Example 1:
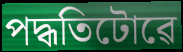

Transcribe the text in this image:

পদ্ধতিটোৱে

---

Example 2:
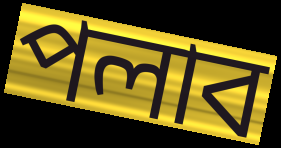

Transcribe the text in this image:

পলাব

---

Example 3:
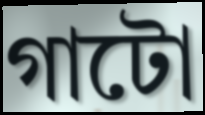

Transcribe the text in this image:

গাটো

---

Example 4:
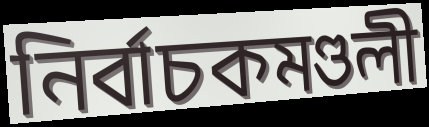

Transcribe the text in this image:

নিৰ্বাচকমণ্ডলী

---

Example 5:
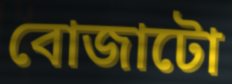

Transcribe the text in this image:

বোজাটো